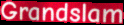
Grandslam